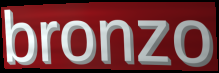
bronzo